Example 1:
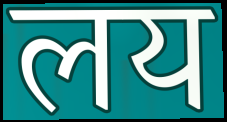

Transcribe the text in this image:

लय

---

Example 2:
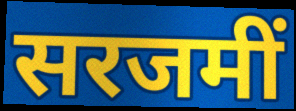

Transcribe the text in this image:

सरजमीं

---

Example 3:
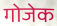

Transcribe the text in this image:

गोजेक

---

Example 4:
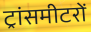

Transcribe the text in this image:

ट्रांसमीटरों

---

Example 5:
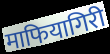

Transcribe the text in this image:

माफियागिरी